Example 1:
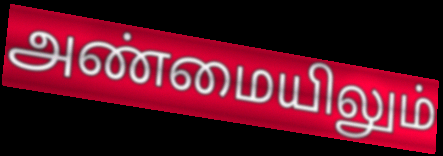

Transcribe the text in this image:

அண்மையிலும்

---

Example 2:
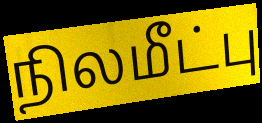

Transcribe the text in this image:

நிலமீட்பு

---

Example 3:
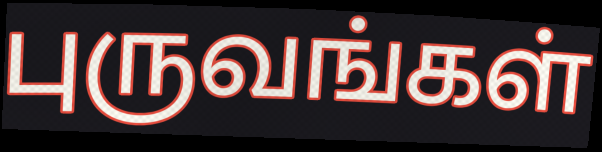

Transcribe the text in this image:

புருவங்கள்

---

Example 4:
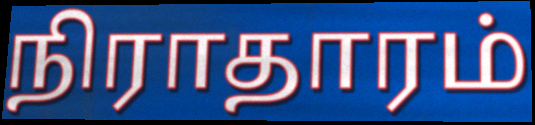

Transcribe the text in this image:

நிராதாரம்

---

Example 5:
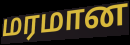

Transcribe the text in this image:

மரமான